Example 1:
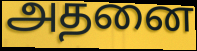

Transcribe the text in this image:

அதனை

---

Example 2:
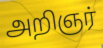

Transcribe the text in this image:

அறிஞர்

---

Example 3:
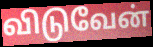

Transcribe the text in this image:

விடுவேன்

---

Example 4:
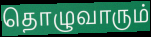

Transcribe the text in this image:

தொழுவாரும்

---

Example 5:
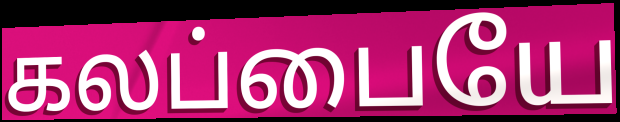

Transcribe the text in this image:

கலப்பையே